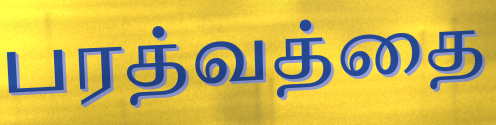
பரத்வத்தை